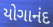
યોગાનંદ